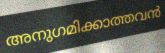
അനുഗമിക്കാത്തവൻ